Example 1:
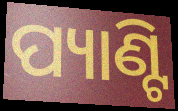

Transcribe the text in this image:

ପ୍ୟାଣ୍ଟି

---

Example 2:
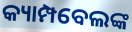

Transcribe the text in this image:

କ୍ୟାମ୍ପବେଲଙ୍କ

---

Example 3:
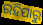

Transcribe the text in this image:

ରହିପାରୁ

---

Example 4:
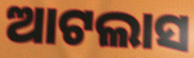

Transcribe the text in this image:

ଆଟଲାସ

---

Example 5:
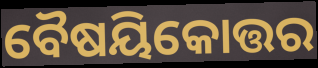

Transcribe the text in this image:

ବୈଷୟିକୋତ୍ତର